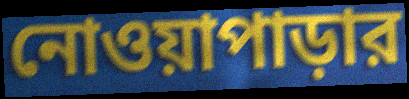
নোওয়াপাড়ার